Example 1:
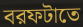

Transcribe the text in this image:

বরফটাতে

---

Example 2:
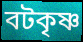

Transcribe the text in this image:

বটকৃষ্ণ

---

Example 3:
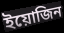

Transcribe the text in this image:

ইয়োজিন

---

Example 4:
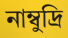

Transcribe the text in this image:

নাম্বুদ্রি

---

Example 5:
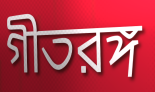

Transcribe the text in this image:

গীতরঙ্গ